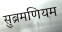
सुब्रमणियम